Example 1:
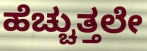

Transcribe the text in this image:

ಹೆಚ್ಚುತ್ತಲೇ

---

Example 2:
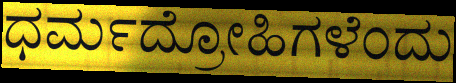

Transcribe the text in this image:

ಧರ್ಮದ್ರೋಹಿಗಳೆಂದು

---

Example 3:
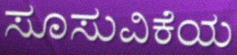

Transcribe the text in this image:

ಸೂಸುವಿಕೆಯ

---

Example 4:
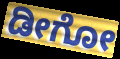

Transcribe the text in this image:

ಡೀಗೋ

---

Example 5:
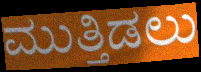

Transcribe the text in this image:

ಮುತ್ತಿಡಲು